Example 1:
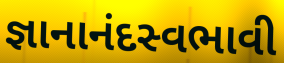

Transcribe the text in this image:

જ્ઞાનાનંદસ્વભાવી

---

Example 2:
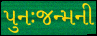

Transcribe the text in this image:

પુનઃજન્મની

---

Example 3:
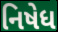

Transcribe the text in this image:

નિષેધ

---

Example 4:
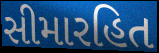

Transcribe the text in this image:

સીમારહિત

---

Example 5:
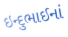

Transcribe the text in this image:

ઇન્દુભાઈનાં